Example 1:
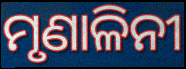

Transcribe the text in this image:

ମୃଣାଳିନୀ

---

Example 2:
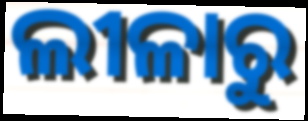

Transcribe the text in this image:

ଲୀଳାରୁ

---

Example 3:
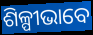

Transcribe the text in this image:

ଶିଳ୍ପୀଭାବେ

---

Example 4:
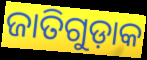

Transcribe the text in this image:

ଜାତିଗୁଡ଼ାକ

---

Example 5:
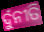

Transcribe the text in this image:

ର୍ଦୁନୀତି